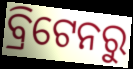
ବ୍ରିଟେନରୁ